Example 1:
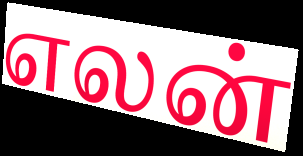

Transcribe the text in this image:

எலன்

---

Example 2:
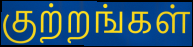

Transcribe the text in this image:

குற்றங்கள்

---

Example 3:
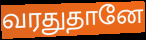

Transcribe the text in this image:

வரதுதானே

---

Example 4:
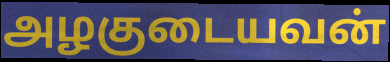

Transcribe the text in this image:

அழகுடையவன்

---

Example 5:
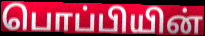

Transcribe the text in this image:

பொப்பியின்